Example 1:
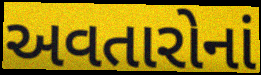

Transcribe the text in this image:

અવતારોનાં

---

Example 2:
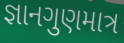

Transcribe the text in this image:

જ્ઞાનગુણમાત્ર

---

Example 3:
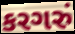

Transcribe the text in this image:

કરગરું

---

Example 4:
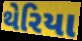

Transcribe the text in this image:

થેરિયા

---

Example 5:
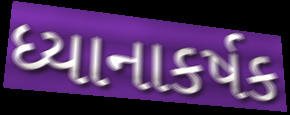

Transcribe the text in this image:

ધ્યાનાકર્ષક